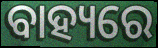
ବାହ୍ୟରେ